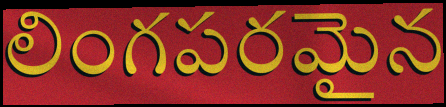
లింగపరమైన